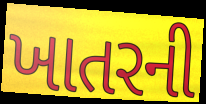
ખાતરની